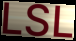
LSL